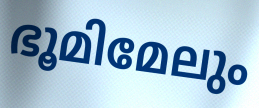
ഭൂമിമേലും